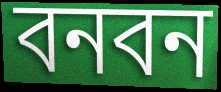
বনবন